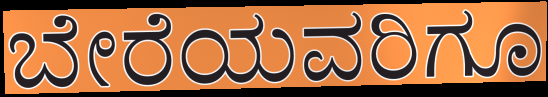
ಬೇರೆಯವರಿಗೂ